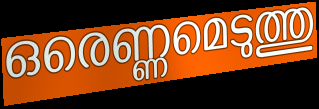
ഒരെണ്ണമെടുത്തു